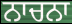
ਨਾਚਨਾ